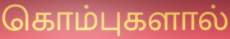
கொம்புகளால்